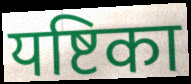
यष्टिका